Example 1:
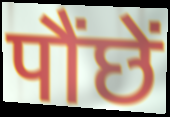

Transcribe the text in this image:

पौंछें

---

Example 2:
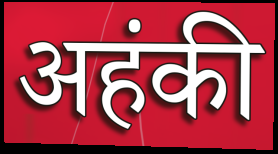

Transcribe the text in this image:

अहंकी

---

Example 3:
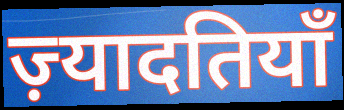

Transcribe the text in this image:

ज़्यादतियाँ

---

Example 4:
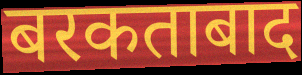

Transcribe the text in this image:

बरकताबाद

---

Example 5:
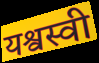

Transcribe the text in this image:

यश्वस्वी